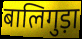
बालिगुड़ा